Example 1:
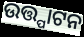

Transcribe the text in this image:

ଉତ୍ତ୍ପାଟନ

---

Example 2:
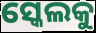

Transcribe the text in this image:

ସ୍କେଲକୁ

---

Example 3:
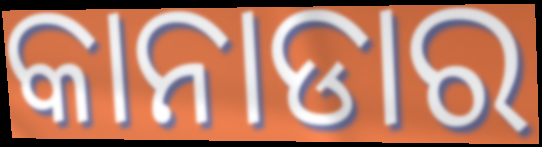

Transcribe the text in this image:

କାନାଡାର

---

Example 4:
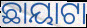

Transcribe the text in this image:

ଛାୟାଟା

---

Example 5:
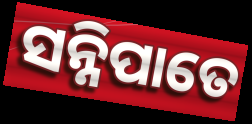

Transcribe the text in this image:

ସନ୍ନିପାତେ